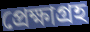
প্রেক্ষাগ্রহ